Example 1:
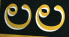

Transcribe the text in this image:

ಲಲ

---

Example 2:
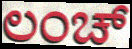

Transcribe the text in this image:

ಲಂಚ್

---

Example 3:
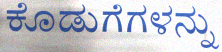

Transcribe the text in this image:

ಕೊಡುಗೆಗಳನ್ನು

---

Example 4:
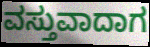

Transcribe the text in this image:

ವಸ್ತುವಾದಾಗ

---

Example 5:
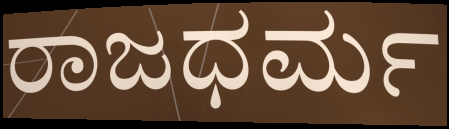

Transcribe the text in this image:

ರಾಜಧರ್ಮ